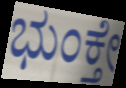
ಭುಂಕ್ತೇ